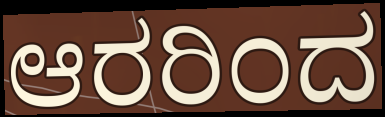
ಆರರಿಂದ